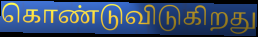
கொண்டுவிடுகிறது